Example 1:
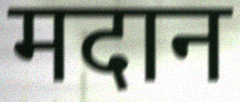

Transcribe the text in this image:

मदान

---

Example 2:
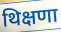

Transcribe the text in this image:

थिक्षणा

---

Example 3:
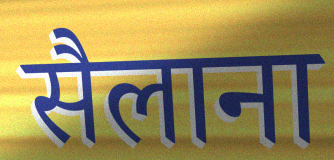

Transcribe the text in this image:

सैलाना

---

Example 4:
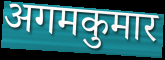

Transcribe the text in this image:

अगमकुमार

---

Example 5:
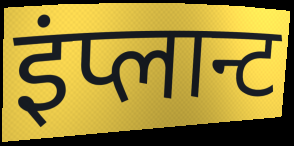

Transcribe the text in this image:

इंप्लान्ट